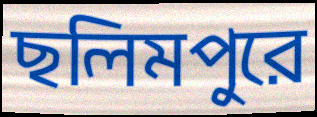
ছলিমপুরে